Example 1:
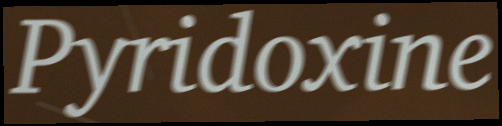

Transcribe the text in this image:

Pyridoxine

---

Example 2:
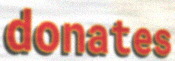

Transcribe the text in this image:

donates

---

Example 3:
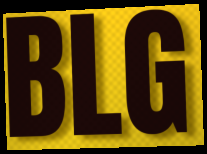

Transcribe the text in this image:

BLG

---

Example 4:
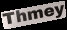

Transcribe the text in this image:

Thmey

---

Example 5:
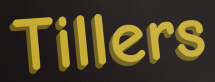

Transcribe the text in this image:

Tillers